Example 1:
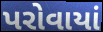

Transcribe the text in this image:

પરોવાયાં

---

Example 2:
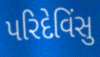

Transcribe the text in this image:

પરિદેવિંસુ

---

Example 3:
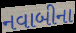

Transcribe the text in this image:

નવાબીના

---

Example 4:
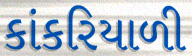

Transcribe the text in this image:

કાંકરિયાળી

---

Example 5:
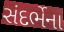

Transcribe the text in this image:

સંદર્ભેના